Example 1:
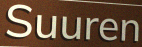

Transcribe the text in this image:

Suuren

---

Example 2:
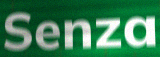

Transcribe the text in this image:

Senza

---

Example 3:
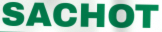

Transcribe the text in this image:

SACHOT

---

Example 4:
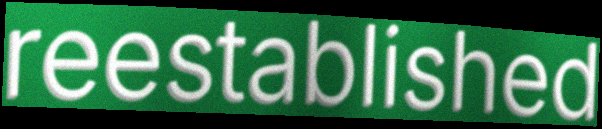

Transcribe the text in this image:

reestablished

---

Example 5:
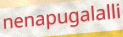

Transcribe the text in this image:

nenapugalalli